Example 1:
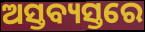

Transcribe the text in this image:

ଅସ୍ତବ୍ୟସ୍ତରେ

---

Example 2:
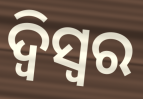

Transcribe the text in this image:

ଦ୍ଵିସ୍ଵର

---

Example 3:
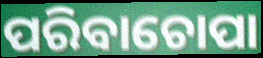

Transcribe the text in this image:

ପରିବାଚୋପା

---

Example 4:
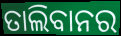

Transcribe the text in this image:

ତାଲିବାନର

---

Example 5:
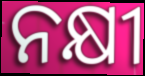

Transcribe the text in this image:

ନକ୍ଷୀ